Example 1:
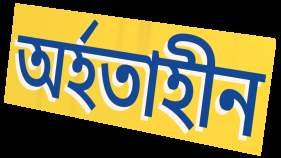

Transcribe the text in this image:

অৰ্হতাহীন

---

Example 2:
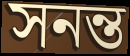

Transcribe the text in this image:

সনন্ত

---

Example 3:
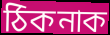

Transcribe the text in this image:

ঠিকনাক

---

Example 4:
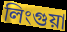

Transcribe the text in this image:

লিংগুয়া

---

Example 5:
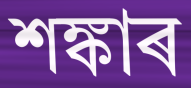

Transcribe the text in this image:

শঙ্কাৰ